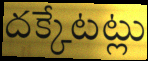
దక్కేటట్లు